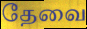
தேவை